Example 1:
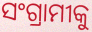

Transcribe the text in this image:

ସଂଗ୍ରାମୀକୁ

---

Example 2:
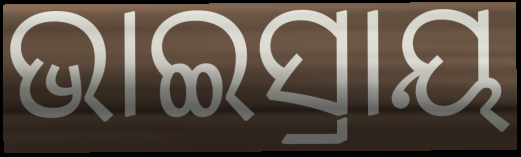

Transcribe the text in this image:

ଭାଇସ୍ରାୟ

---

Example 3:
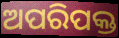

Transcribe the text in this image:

ଅପରିପକ୍ତ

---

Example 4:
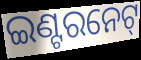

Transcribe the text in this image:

ଇଣ୍ଟରନେଟ୍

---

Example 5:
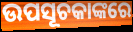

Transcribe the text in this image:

ଉପସୂଚକାଙ୍କରେ